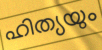
ഹിത്യയും